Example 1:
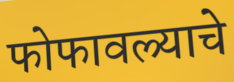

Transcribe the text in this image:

फोफावल्याचे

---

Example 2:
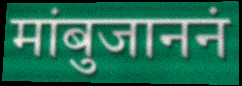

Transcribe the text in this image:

मांबुजाननं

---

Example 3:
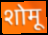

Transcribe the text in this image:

शोमू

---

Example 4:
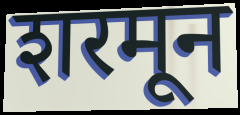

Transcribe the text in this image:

शरमून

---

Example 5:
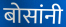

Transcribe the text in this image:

बोसांनी